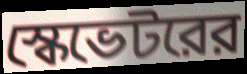
স্কেভেটরের